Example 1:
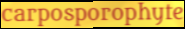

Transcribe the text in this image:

carposporophyte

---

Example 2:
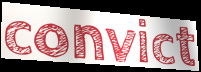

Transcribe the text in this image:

convict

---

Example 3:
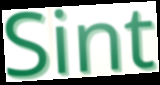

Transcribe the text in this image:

Sint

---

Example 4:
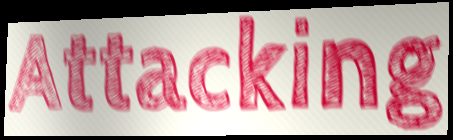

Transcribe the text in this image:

Attacking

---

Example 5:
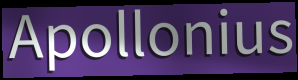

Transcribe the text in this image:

Apollonius